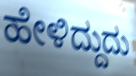
ಹೇಳಿದ್ದುದು